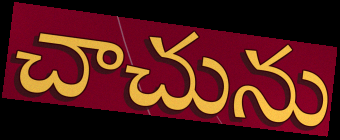
చాచును